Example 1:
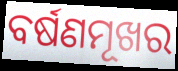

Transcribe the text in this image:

ବର୍ଷଣମୂଖର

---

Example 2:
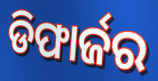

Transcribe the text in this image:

ଡିଫାର୍ଜର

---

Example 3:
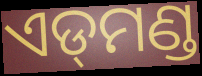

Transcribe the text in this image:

ଏଡ୍‌ମଣ୍ଡ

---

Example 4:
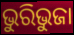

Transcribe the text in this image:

ଭୁରିଭୁଜା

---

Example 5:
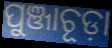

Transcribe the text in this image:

ପୁଞ୍ଜାଚୂଡ଼ା